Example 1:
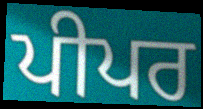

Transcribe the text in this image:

ਪੀਪਰ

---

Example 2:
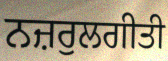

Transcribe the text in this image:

ਨਜ਼ਰੁਲਗੀਤੀ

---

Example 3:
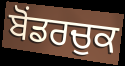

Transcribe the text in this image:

ਬੋਂਡਰਚੁਕ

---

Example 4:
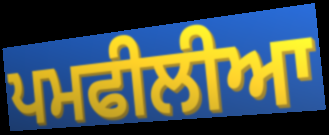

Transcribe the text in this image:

ਪਮਫੀਲੀਆ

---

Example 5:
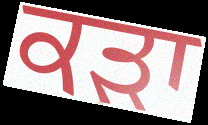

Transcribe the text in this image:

ਕੜਾ